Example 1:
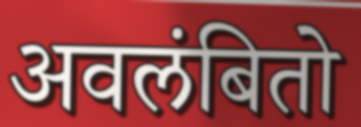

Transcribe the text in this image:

अवलंबितो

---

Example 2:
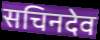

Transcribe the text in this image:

सचिनदेव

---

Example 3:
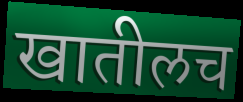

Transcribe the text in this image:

खातीलच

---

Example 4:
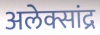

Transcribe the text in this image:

अलेक्सांद्र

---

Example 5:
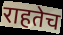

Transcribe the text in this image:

राहतेच